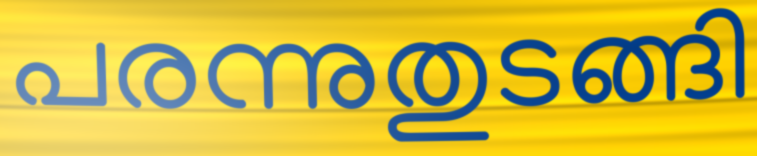
പരന്നുതുടങ്ങി